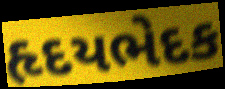
હૃદયભેદક